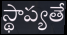
స్థాప్యతే